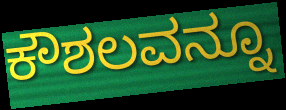
ಕೌಶಲವನ್ನೂ